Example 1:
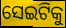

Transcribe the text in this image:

ସେଇଟିକୁ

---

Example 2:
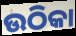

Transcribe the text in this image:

ଉଠିକା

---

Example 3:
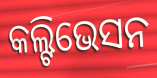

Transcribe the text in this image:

କଲ୍ଟିଭେସନ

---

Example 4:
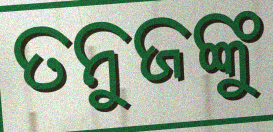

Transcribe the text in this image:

ତନୁଜଙ୍କୁ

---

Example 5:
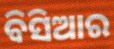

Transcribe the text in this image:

ବିସିଆର